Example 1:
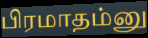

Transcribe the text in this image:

பிரமாதம்னு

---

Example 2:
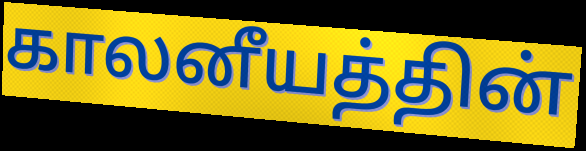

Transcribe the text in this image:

காலனீயத்தின்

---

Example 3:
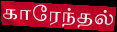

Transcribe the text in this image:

காரேந்தல்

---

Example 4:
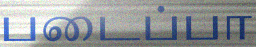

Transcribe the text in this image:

படைப்பா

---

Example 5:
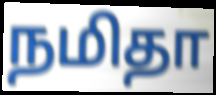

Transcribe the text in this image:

நமிதா